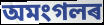
অমংগলৰ